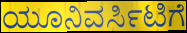
ಯೂನಿವರ್ಸಿಟಿಗೆ